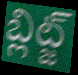
బ్లిట్జ్